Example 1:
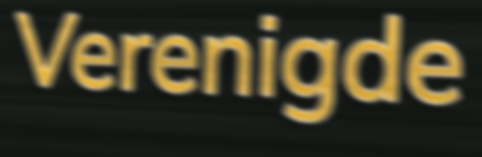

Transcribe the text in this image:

Verenigde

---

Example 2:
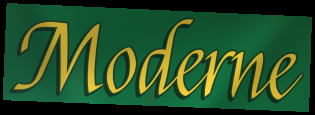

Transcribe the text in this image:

Moderne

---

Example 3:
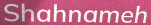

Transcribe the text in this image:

Shahnameh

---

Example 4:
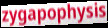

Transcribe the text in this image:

zygapophysis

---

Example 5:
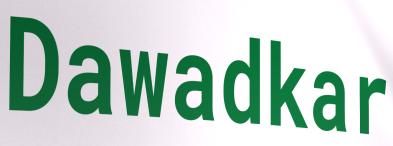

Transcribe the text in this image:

Dawadkar